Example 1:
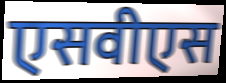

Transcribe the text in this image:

एसवीएस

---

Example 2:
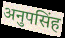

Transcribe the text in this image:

अनुपसिंह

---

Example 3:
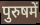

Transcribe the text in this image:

पुरुषमें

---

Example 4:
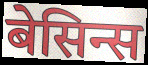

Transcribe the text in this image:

बेसिन्स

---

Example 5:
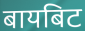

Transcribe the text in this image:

बायबिट